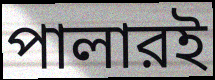
পালারই